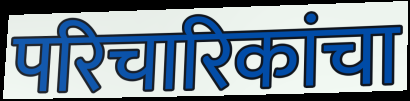
परिचारिकांचा